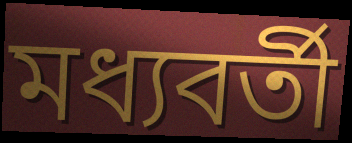
মধ্যবৰ্তী